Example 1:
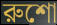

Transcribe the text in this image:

রুশো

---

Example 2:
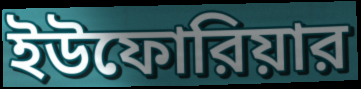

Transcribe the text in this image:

ইউফোরিয়ার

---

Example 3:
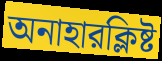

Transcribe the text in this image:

অনাহারক্লিষ্ট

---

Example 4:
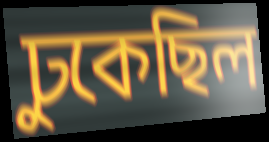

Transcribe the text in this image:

ঢুকেছিল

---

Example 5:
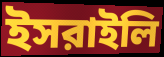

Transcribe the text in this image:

ইসরাইলি